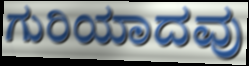
ಗುರಿಯಾದವು